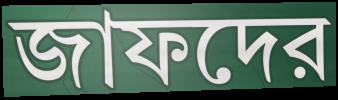
জাফদের